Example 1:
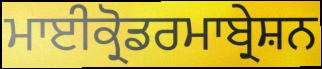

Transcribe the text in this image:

ਮਾਈਕ੍ਰੋਡਰਮਾਬ੍ਰੇਸ਼ਨ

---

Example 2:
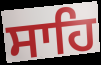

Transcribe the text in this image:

ਸਾਹਿ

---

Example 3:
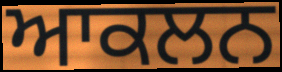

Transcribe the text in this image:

ਆਕਲਨ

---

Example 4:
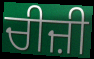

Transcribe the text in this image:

ਚੀਜ਼ੀ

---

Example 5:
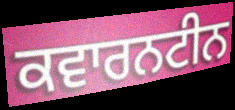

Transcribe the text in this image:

ਕਵਾਰਨਟੀਨ